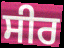
ਸੀਰ